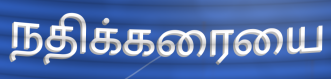
நதிக்கரையை